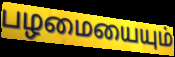
பழமையையும்